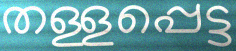
തള്ളപ്പെട്ട